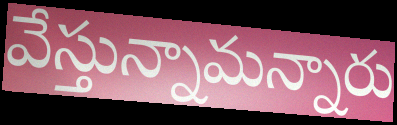
వేస్తున్నామన్నారు